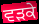
ਵੜਕੇ